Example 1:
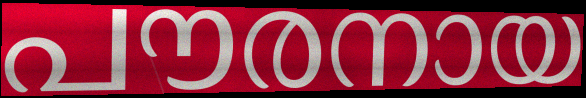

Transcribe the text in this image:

പൗരനായ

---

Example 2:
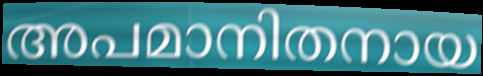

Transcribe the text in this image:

അപമാനിതനായ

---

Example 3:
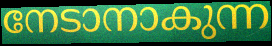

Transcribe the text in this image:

നേടാനാകുന്ന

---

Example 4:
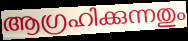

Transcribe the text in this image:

ആഗ്രഹിക്കുന്നതും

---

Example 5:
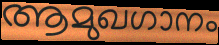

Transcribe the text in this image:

ആമുഖഗാനം